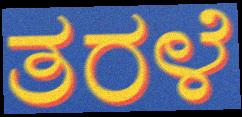
ತರಳೆ